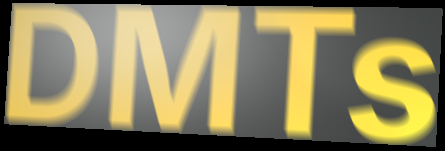
DMTs